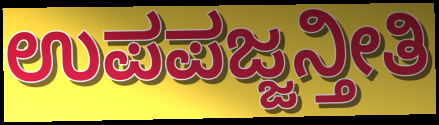
ಉಪಪಜ್ಜನ್ತೀತಿ